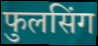
फुलसिंग